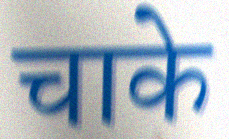
चाके